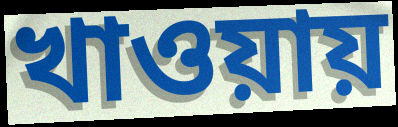
খাওয়ায়